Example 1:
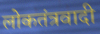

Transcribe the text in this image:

लोकतंत्रवादी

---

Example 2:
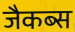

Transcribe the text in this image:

जैकब्स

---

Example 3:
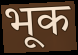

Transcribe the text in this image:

भूक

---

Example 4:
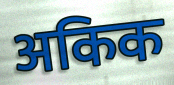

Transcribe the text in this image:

अकिक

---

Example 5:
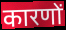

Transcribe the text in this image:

कारणों